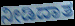
ನೀಡಿದಾತ